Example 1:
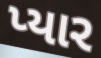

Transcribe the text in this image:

પ્યાર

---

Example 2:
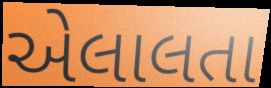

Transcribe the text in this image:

એલાલતા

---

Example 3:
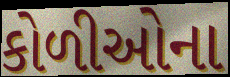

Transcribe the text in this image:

કોળીઓના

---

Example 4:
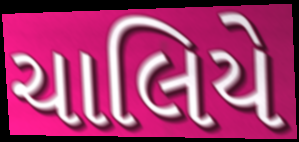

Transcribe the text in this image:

ચાલિયે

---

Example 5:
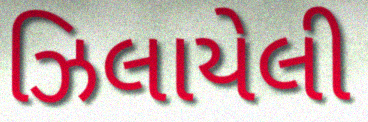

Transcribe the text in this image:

ઝિલાયેલી